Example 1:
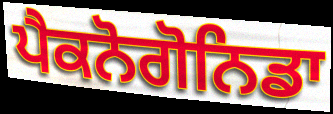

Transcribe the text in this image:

ਪੈਕਨੋਗੋਨਿਡਾ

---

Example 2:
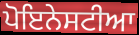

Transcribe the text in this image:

ਪੋਇਨੇਸਟੀਆ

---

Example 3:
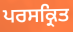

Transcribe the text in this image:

ਪਰਸਕ੍ਰਿਤ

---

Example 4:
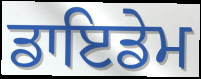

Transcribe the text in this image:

ਡਾਇਡੇਮ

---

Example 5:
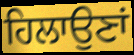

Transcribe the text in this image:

ਹਿਲਾਉਣਾਂ